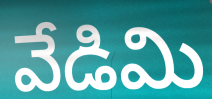
వేడిమి